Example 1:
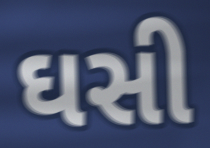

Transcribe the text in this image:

ઘસી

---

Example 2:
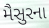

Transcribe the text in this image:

મૈસુરના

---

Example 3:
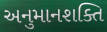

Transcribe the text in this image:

અનુમાનશક્તિ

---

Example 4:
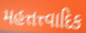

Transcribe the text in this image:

મહત્તત્ત્વાદિક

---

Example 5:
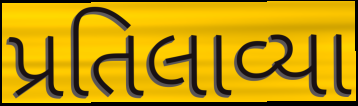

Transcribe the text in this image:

પ્રતિલાવ્યા